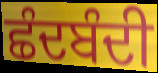
ਛੰਦਬੰਦੀ